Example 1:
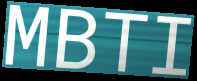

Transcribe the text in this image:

MBTI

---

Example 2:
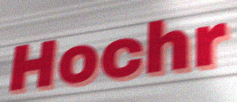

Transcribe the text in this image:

Hochr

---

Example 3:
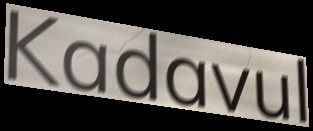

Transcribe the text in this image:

Kadavul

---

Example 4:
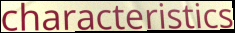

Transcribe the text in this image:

characteristics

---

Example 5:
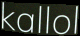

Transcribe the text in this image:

kallol